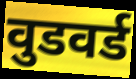
वुडवर्ड